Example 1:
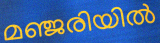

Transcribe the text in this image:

മഞ്ജരിയിൽ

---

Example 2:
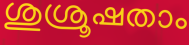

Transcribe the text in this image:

ശുശ്രൂഷതാം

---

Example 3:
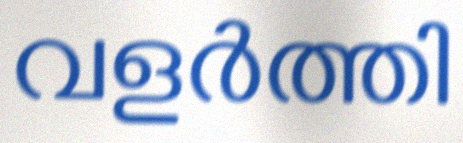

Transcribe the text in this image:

വളർത്തി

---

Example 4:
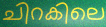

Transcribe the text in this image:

ചിറകിലെ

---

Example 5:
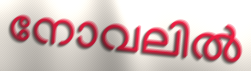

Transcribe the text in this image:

നോവലിൽ